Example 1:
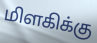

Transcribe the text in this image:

மிளகிக்கு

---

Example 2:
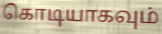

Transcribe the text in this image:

கொடியாகவும்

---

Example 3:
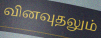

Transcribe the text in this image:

வினவுதலும்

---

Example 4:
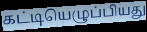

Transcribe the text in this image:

கட்டியெழுப்பியது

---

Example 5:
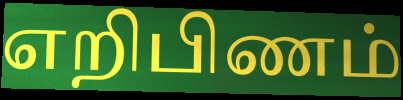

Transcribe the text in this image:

எறிபிணம்